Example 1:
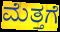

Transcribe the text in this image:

ಮೆತ್ತಗೆ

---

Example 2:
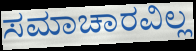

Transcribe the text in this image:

ಸಮಾಚಾರವಿಲ್ಲ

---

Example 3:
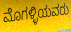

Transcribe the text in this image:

ಮೊಗಳ್ಳಿಯವರು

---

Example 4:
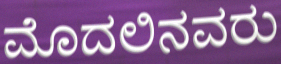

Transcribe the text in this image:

ಮೊದಲಿನವರು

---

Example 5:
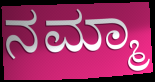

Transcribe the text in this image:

ನಮ್ಮಾ